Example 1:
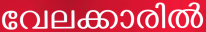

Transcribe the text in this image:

വേലക്കാരിൽ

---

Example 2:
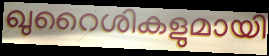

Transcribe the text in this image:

ഖുറൈശികളുമായി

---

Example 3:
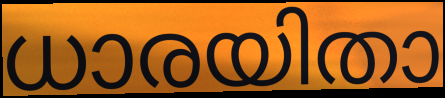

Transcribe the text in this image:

ധാരയിതാ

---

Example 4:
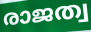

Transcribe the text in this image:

രാജത്വ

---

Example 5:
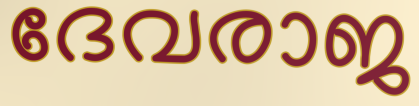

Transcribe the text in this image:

ദേവരാജ